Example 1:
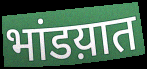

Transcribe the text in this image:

भांडय़ात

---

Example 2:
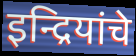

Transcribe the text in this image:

इन्द्रियांचे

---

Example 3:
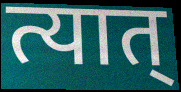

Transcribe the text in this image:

त्यात्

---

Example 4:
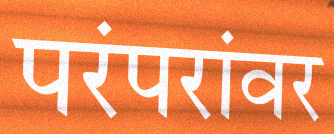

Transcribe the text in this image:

परंपरांवर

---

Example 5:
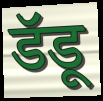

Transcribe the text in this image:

डॅडू